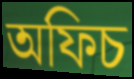
অফিচ